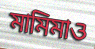
মামিমাও